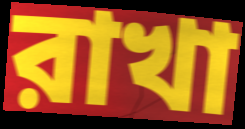
রাখা